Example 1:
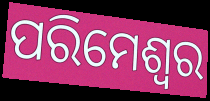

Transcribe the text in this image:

ପରିମେଶ୍ୱର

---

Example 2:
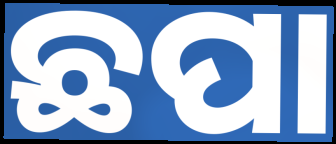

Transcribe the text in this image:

ଛପା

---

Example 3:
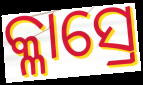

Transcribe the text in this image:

କ୍ଳାସ୍ରେ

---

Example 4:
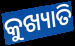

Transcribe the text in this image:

କୁଖ୍ୟାତି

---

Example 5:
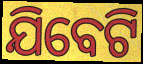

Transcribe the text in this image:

ଯିବେଟି